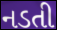
નડતી